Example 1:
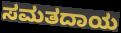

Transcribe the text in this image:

ಸಮತದಾಯ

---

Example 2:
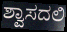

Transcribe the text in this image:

ಶ್ವಾಸದಲಿ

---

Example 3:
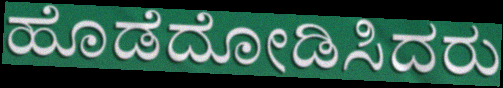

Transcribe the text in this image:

ಹೊಡೆದೋಡಿಸಿದರು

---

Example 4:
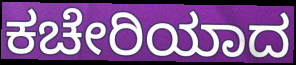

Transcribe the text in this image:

ಕಚೇರಿಯಾದ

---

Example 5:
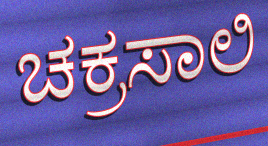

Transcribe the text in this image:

ಚಕ್ರಸಾಲಿ